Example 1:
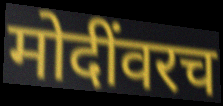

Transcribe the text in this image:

मोदींवरच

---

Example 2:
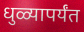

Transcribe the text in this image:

धुळ्यापर्यंत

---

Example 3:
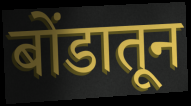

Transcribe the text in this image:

बोंडातून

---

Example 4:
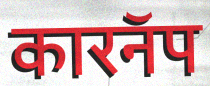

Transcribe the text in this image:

कारनॅप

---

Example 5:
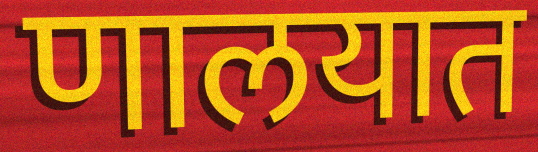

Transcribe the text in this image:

णालयात